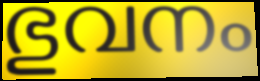
ഭുവനം